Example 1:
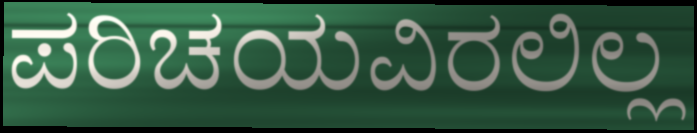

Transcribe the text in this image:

ಪರಿಚಯವಿರಲಿಲ್ಲ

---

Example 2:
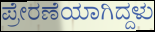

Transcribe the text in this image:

ಪ್ರೇರಣೆಯಾಗಿದ್ದಳು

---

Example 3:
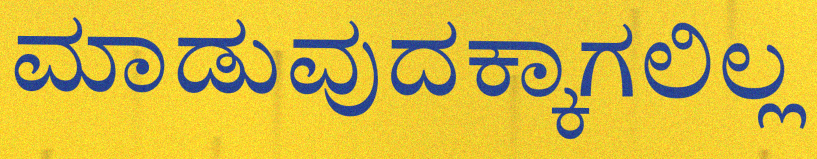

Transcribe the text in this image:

ಮಾಡುವುದಕ್ಕಾಗಲಿಲ್ಲ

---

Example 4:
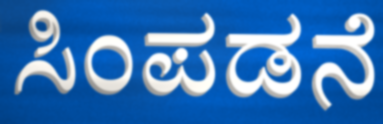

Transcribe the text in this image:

ಸಿಂಪಡನೆ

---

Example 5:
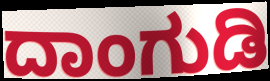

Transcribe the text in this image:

ದಾಂಗುಡಿ